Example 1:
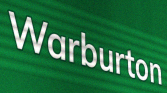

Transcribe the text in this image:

Warburton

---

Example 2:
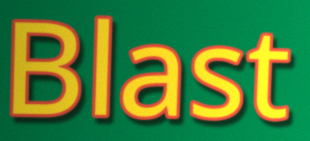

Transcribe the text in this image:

Blast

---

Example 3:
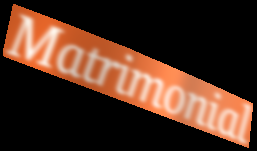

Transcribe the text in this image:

Matrimonial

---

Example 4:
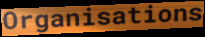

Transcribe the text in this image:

Organisations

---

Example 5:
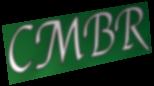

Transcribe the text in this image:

CMBR